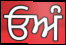
ਓਅੰ